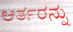
ಆರ್ತರನ್ನು